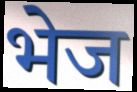
भेज